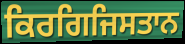
ਕਿਰਗਿਜਿਸਤਾਨ